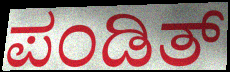
ಪಂಡಿತ್